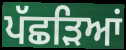
ਪੱਛੜਿਆਂ